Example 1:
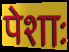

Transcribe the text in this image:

पेशाः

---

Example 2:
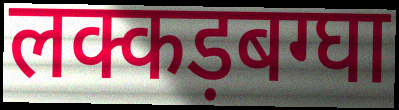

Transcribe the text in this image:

लक्कड़बग्घा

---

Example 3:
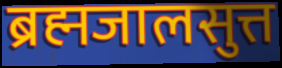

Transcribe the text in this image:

ब्रह्मजालसुत्त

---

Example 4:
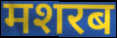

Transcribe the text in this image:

मशरब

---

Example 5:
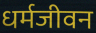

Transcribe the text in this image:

धर्मजीवन